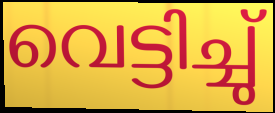
വെട്ടിച്ചു്